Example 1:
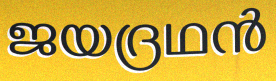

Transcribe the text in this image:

ജയദ്രഥൻ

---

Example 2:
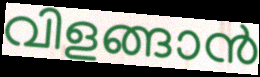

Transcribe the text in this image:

വിളങ്ങാൻ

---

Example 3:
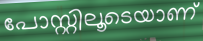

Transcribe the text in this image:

പോസ്റ്റിലൂടെയാണ്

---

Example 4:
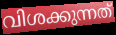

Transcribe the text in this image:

വിശക്കുന്നത്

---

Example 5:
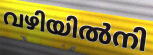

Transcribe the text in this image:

വഴിയിൽനി